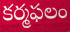
కర్మఫలం